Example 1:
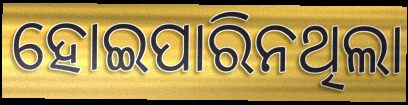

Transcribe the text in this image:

ହୋଇପାରିନଥିଲା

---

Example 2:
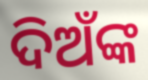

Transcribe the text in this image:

ଦିଅଁଙ୍କ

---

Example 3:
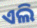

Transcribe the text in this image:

ଏଲି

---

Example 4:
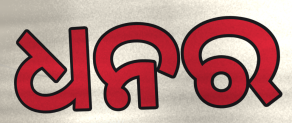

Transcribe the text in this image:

ଧନର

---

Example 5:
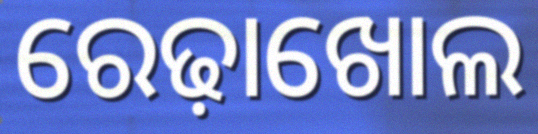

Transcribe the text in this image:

ରେଢ଼ାଖୋଲ